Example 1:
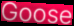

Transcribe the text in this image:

Goose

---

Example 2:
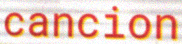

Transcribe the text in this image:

cancion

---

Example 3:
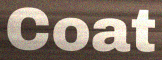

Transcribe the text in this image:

Coat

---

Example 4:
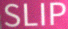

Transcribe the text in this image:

SLIP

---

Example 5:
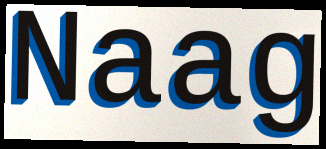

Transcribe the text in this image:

Naag